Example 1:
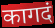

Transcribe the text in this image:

कागदं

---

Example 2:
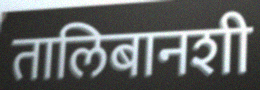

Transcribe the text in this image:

तालिबानशी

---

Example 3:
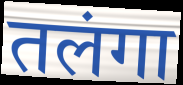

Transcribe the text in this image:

तलंगा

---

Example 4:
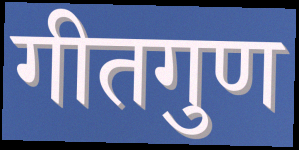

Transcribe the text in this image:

गीतगुण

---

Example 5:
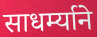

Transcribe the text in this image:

साधर्म्याने